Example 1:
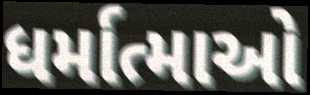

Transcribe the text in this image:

ધર્માત્માઓ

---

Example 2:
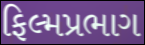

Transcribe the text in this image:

ફિલ્મપ્રભાગ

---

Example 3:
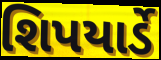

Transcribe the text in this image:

શિપયાર્ડે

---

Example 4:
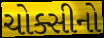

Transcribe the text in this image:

ચોક્સીનો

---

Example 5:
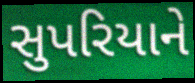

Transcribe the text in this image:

સુપરિયાને